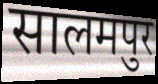
सालमपुर